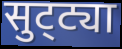
सुट्ट्या